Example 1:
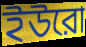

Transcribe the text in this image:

ইউরো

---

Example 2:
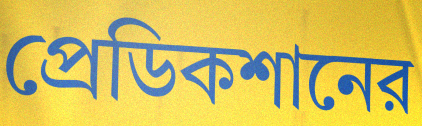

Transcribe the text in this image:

প্রেডিকশানের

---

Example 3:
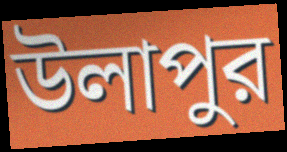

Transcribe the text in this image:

উলাপুর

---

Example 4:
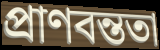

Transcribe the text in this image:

প্রাণবন্ততা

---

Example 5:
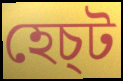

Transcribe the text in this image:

হেচ্ট